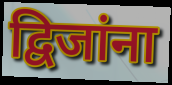
द्विजांना